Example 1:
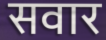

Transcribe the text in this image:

सवार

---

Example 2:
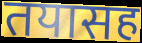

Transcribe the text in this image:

तयासह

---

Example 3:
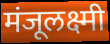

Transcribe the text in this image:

मंजूलक्ष्मी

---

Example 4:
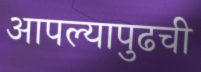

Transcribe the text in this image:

आपल्यापुढची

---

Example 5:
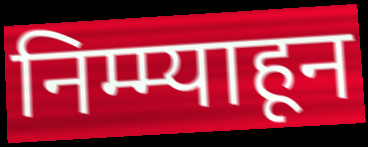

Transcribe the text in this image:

निम्म्याहून